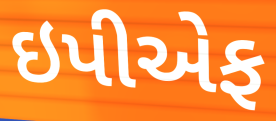
ઇપીએફ